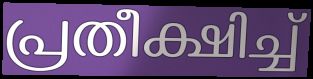
പ്രതീക്ഷിച്ച്